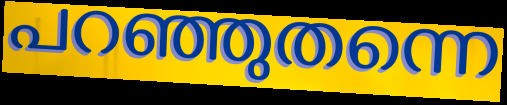
പറഞ്ഞുതന്നെ